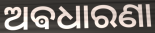
ଅଵଧାରଣା